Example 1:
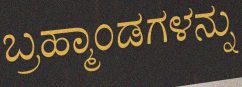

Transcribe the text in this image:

ಬ್ರಹ್ಮಾಂಡಗಳನ್ನು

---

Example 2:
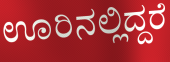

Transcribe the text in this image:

ಊರಿನಲ್ಲಿದ್ದರೆ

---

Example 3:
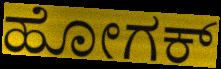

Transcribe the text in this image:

ಹೋಗಕ್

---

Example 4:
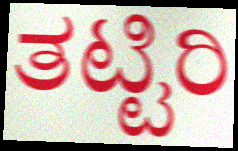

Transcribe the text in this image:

ತಟ್ಟಿರಿ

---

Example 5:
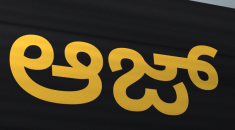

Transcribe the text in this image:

ಆಜ್